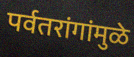
पर्वतरांगांमुळे